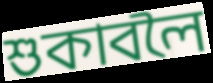
শুকাবলৈ